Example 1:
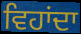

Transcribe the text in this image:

ਵਿਹਾਂਦਾ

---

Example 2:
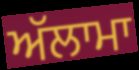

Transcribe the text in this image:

ਅੱਲਾਮਾ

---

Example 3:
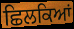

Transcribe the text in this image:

ਛਿਲਕਿਆਂ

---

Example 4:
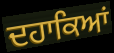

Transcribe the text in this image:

ਦਹਾਕਿਆਂ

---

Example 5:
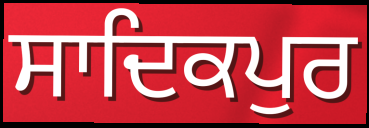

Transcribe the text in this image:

ਸਾਦਿਕਪੁਰ